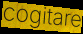
cogitare